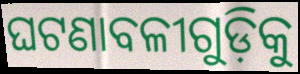
ଘଟଣାବଳୀଗୁଡ଼ିକୁ